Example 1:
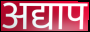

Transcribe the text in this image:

अद्याप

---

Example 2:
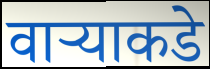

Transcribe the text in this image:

वाऱ्याकडे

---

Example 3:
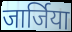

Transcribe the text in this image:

जार्जिया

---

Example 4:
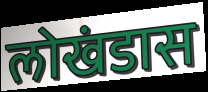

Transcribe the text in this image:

लोखंडास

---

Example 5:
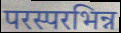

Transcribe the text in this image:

परस्परभिन्न